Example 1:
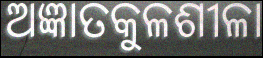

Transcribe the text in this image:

ଅଜ୍ଞାତକୁଳଶୀଳା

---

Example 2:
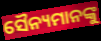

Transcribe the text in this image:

ସୈନ୍ୟମାନଙ୍କୁ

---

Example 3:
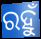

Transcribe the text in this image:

ରହୁଁ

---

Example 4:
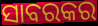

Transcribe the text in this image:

ସାବରକର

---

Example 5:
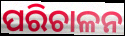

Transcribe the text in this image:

ପରିଚାଳନ